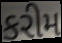
કરીમ